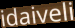
idaiveli